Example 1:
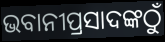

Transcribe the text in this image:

ଭବାନୀପ୍ରସାଦଙ୍କଠୁଁ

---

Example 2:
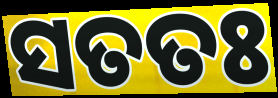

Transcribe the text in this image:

ସତତଃ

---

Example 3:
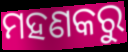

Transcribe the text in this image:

ମହଣକରୁ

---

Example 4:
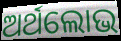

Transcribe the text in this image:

ଅର୍ଥଲୋଭ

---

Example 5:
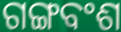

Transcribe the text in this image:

ଗଙ୍ଗବଂଶ